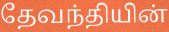
தேவந்தியின்